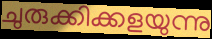
ചുരുക്കിക്കളയുന്നു